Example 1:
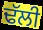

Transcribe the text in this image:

ਢੱਲੀ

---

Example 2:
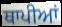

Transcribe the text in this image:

ਥਾਪੀਆਂ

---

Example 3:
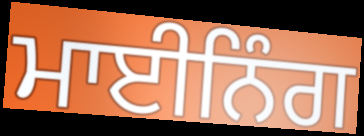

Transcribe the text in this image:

ਮਾਈਨਿੰਗ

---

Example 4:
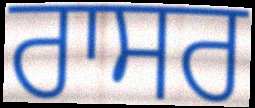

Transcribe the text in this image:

ਰਾਸਰ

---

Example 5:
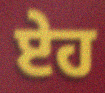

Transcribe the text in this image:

ਏਹ